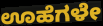
ಊಹೆಗಳೇ